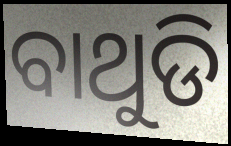
ବାଥୁଡି